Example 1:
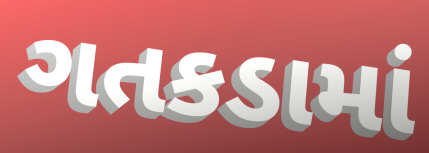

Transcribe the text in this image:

ગતકડામાં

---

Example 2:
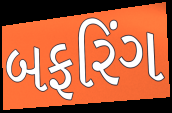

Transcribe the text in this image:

બફરિંગ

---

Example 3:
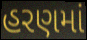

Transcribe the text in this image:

હરણમાં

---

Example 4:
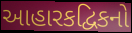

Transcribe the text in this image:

આહારકદ્વિકનો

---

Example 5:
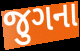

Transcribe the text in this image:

જુગના